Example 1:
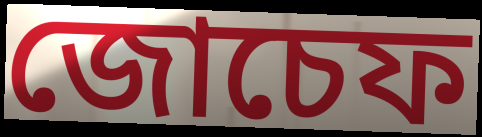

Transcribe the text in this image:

জোচেফ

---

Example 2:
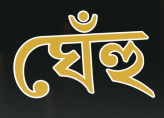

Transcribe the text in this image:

ঘেঁহু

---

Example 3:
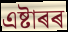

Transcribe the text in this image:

এষ্টাৰৰ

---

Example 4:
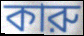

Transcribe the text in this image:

কাৰু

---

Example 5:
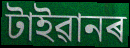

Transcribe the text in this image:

টাইৱানৰ